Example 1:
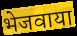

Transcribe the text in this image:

भेजवाया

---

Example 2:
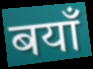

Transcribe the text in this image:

बयाँ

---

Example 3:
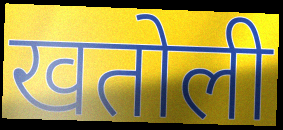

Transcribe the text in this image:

खतोली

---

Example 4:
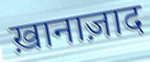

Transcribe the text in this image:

ख़ानाज़ाद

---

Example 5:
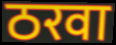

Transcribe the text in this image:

ठरवा